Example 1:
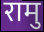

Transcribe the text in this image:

रामु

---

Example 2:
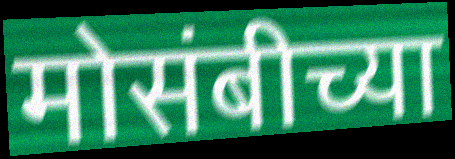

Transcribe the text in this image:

मोसंबीच्या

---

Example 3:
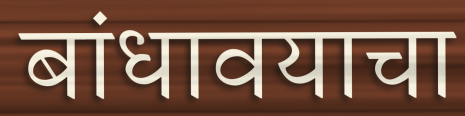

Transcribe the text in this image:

बांधावयाचा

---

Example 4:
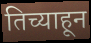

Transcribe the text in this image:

तिच्याहून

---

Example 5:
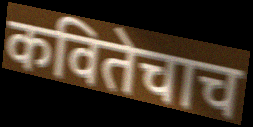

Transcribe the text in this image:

कवितेचाच